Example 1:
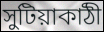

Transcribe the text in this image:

সুটিয়াকাঠী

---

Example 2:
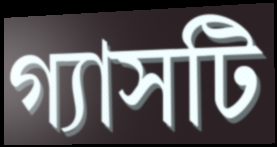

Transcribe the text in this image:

গ্যাসটি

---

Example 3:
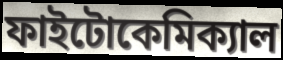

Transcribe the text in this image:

ফাইটোকেমিক্যাল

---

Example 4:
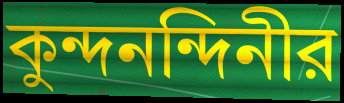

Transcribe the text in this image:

কুন্দনন্দিনীর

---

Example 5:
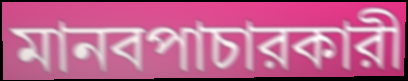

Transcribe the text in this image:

মানবপাচারকারী